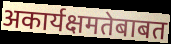
अकार्यक्षमतेबाबत